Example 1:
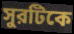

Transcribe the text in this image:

সুরটিকে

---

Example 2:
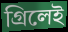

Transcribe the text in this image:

গ্রিলেই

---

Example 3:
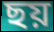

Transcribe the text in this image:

ছয়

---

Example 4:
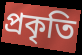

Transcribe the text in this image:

প্রকৃতি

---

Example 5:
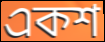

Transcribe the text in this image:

একশ